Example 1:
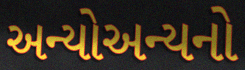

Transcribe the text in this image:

અન્યોઅન્યનો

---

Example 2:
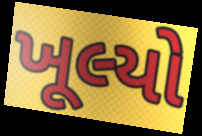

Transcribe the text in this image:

ખૂલ્યો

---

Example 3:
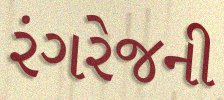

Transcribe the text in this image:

રંગરેજની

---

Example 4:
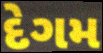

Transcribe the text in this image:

દેગમ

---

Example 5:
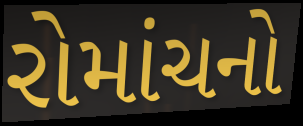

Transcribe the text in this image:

રોમાંચનો